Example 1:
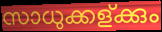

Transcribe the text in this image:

സാധുക്കള്ക്കും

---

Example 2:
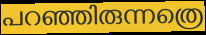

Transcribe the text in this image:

പറഞ്ഞിരുന്നത്രെ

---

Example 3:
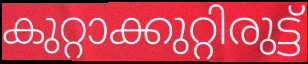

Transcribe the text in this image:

കുറ്റാക്കുറ്റിരുട്ട്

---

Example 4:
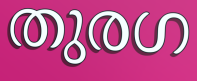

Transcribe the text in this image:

തുരഗ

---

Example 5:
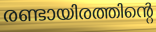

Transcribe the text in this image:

രണ്ടായിരത്തിന്റെ